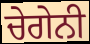
ਚੇਗੇਨੀ